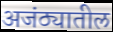
अजंठ्यातील